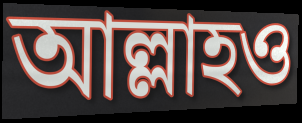
আল্লাহও